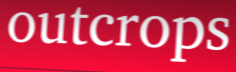
outcrops